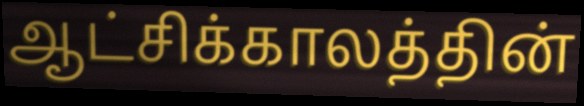
ஆட்சிக்காலத்தின்